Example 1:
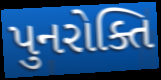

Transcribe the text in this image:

પુનરોક્તિ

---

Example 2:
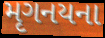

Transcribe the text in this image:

મૃગનયના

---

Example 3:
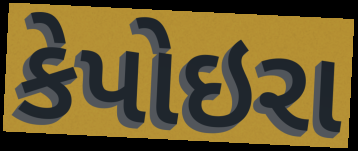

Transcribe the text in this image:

કેપોઇરા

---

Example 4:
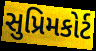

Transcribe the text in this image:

સુપ્રિમકોર્ટ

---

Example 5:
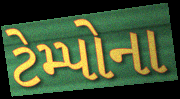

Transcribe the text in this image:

ટેમ્પોના